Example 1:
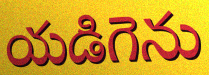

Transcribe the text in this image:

యడిగెను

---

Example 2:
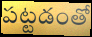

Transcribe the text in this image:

పట్టడంతో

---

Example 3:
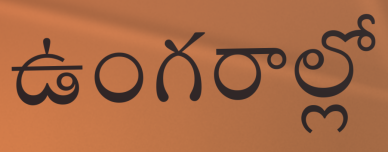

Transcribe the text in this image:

ఉంగరాల్లో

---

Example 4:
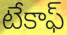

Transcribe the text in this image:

టేకాఫ్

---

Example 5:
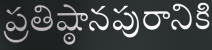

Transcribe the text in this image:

ప్రతిష్ఠానపురానికి